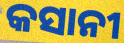
କସାନୀ